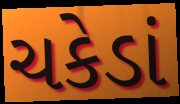
ચકેડાં